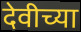
देवीच्या